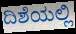
ದಿಶೆಯಲ್ಲಿ